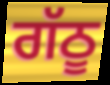
ਗੱਠੂ